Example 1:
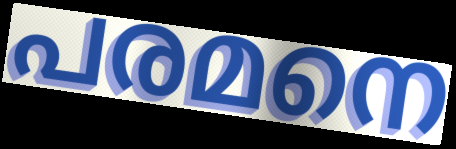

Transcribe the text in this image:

പരമനെ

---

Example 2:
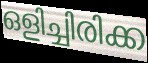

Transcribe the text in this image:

ഒളിച്ചിരിക്ക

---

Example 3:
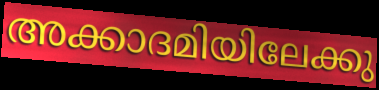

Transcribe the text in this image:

അക്കാദമിയിലേക്കു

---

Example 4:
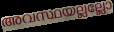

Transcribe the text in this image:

അവസ്ഥയല്ലല്ലോ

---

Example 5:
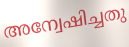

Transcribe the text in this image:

അന്വേഷിച്ചതു